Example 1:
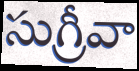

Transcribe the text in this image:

సుగ్రీవా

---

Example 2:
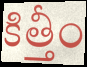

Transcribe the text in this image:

కిత్తీం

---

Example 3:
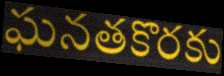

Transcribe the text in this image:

ఘనతకొరకు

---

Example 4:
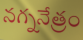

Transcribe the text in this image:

నగ్ననేత్రం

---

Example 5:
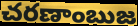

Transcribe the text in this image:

చరణాంబుజ